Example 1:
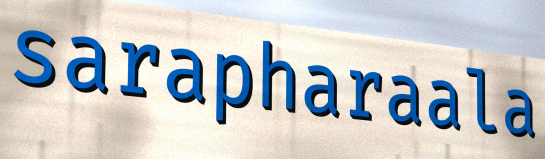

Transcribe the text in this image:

sarapharaala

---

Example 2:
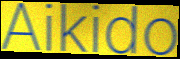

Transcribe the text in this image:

Aikido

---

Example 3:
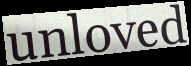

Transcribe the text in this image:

unloved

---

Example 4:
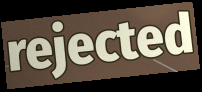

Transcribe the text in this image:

rejected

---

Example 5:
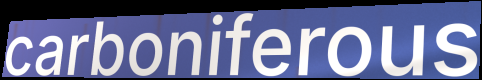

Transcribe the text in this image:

carboniferous